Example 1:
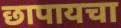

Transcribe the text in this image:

छापायचा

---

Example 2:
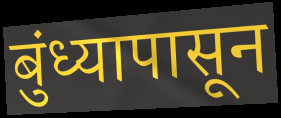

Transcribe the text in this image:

बुंध्यापासून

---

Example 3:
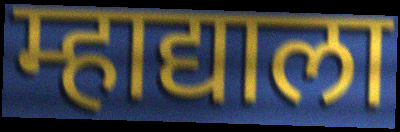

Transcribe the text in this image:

म्हाद्याला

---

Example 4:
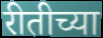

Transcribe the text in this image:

रीतीच्या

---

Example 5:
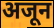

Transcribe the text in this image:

अजून